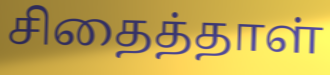
சிதைத்தாள்